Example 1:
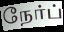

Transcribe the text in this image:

நேர்ப்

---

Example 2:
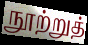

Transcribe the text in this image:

நூற்றுத்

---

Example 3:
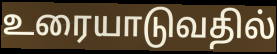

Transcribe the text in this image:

உரையாடுவதில்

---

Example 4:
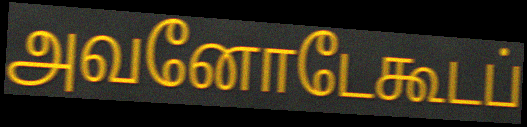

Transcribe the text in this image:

அவனோடேகூடப்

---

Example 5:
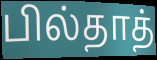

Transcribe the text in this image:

பில்தாத்